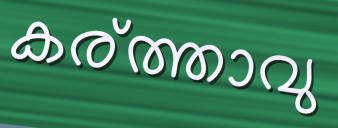
കര്ത്താവു